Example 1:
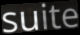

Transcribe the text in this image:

suite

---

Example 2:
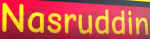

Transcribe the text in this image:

Nasruddin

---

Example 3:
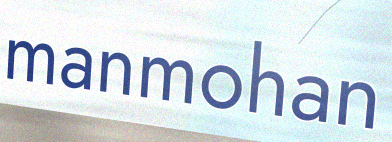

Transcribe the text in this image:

manmohan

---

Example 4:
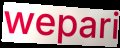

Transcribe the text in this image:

wepari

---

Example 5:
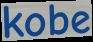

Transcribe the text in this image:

kobe